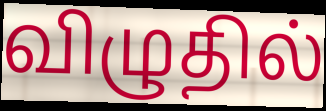
விழுதில்